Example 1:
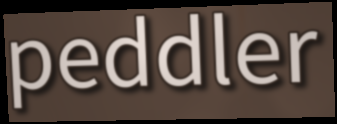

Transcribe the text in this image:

peddler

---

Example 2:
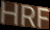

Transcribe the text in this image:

HRF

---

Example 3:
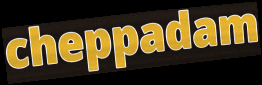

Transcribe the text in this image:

cheppadam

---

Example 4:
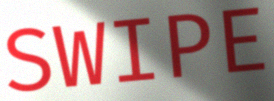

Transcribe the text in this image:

SWIPE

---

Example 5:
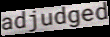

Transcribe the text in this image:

adjudged